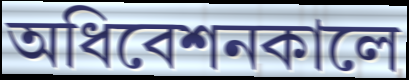
অধিবেশনকালে